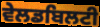
ਵੇਲਡਬਿਲਟੀ